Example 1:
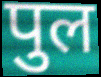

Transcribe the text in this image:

पुल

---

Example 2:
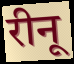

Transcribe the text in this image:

रीनू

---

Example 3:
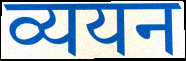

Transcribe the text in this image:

व्ययन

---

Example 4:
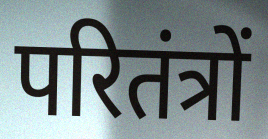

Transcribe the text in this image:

परितंत्रों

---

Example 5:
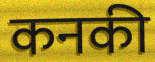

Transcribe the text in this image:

कनकी